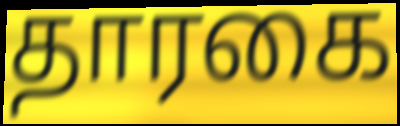
தாரகை